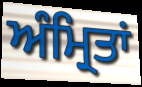
ਅੰਮ੍ਰਿਤਾਂ